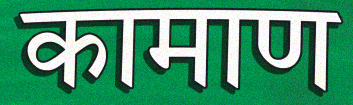
कामाण